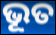
ଭୂତ